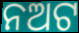
ନଅଟ